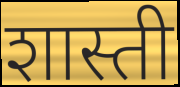
शास्ती